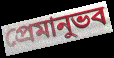
প্রেমানুভব